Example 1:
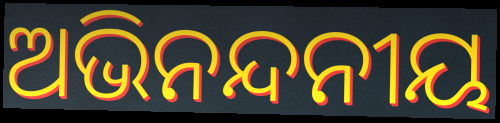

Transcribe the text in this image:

ଅଭିନନ୍ଦନୀୟ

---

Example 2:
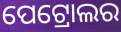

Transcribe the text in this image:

ପେଟ୍ରୋଲର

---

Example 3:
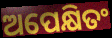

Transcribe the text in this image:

ଅପେକ୍ଷିତଂ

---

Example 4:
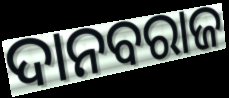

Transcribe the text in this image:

ଦାନବରାଜ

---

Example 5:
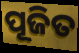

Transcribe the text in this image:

ପୂଜିତ